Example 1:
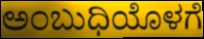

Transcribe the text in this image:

ಅಂಬುಧಿಯೊಳಗೆ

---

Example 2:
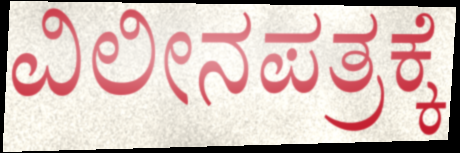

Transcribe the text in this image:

ವಿಲೀನಪತ್ರಕ್ಕೆ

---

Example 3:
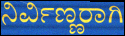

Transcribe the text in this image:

ನಿರ್ವಿಣ್ಣರಾಗಿ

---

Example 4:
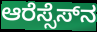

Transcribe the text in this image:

ಆರೆಸ್ಸೆಸ್‌ನ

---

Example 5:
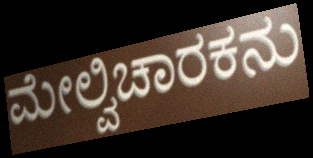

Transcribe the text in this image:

ಮೇಲ್ವಿಚಾರಕನು